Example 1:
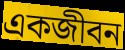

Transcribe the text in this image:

একজীবন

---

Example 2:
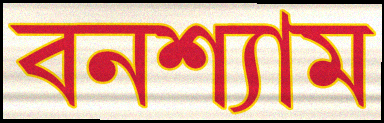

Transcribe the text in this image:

বনশ্যাম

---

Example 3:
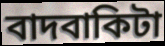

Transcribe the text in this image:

বাদবাকিটা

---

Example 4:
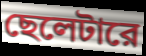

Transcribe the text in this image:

ছেলেটারে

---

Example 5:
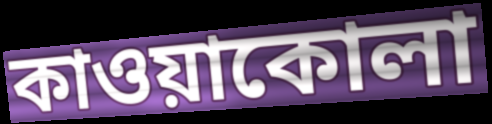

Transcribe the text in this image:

কাওয়াকোলা